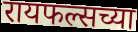
रायफल्सच्या